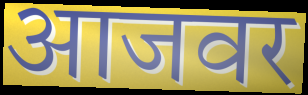
आजवर